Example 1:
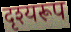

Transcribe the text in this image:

दृश्यरूप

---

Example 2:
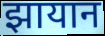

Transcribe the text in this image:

झायान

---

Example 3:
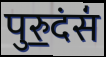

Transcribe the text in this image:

पुरु॒दंसं॑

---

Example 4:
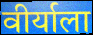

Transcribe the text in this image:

वीर्याला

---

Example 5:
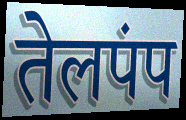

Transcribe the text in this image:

तेलपंप